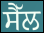
ਸੈੱਲ